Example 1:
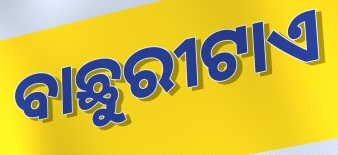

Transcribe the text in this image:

ବାଛୁରୀଟାଏ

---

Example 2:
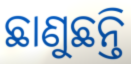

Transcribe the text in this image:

ଛାଣୁଛନ୍ତି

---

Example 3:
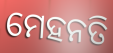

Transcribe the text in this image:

ମେହନତି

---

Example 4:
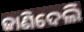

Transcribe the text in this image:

ଜାଣିଦେଲି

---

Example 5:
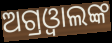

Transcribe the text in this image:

ଅଗ୍ରଓ୍ବାଲଙ୍କ